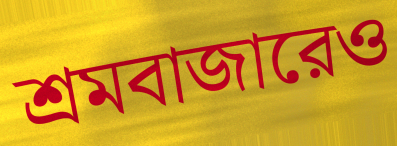
শ্রমবাজারেও